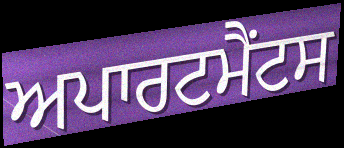
ਅਪਾਰਟਮੈਂਟਸ